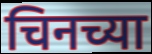
चिनच्या